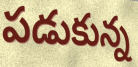
పడుకున్న